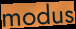
modus